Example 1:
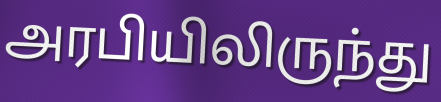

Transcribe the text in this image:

அரபியிலிருந்து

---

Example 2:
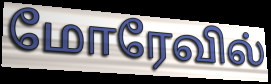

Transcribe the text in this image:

மோரேவில்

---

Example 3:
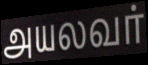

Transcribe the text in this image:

அயலவர்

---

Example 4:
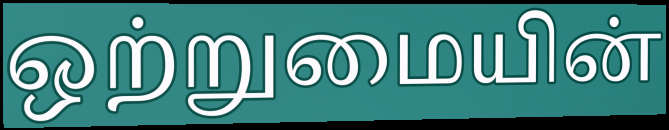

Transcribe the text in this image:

ஒற்றுமையின்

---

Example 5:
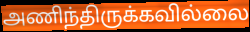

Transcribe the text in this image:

அணிந்திருக்கவில்லை